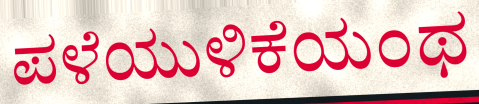
ಪಳೆಯುಳಿಕೆಯಂಥ